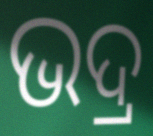
ଭଦ୍ର